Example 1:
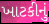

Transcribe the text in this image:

ખાટકીનું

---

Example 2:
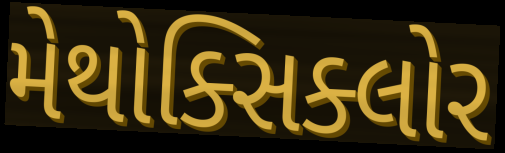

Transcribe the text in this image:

મેથોક્સિક્લોર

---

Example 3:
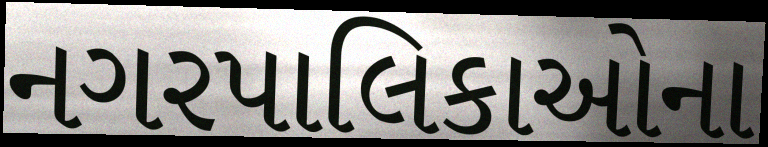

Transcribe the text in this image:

નગરપાલિકાઓના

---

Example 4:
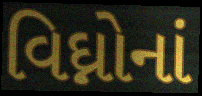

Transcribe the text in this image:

વિઘ્નોનાં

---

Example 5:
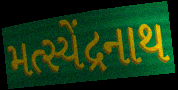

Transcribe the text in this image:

મત્સ્યેંદ્રનાથ